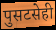
पुसटसेही